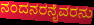
ನಂದನರನೈವರನು